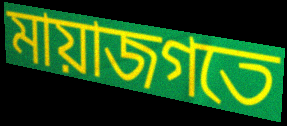
মায়াজগতে